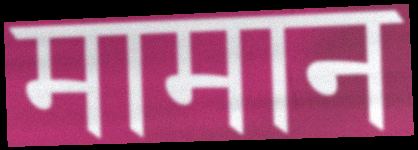
मामान